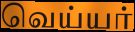
வெய்யர்